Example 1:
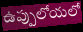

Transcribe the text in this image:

ఉప్పులోయలో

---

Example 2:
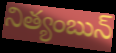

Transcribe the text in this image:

నిత్యంబున్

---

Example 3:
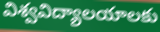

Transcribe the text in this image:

విశ్వవిద్యాలయాలకు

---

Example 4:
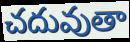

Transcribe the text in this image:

చదువుతా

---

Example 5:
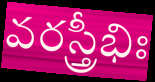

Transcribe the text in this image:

వరస్త్రీభిః